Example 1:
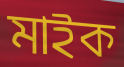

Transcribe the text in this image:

মাইক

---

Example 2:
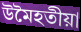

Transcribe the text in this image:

উমৈহতীয়া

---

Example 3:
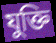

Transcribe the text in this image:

যুক্তি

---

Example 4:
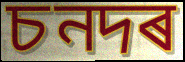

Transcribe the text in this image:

চনদৰ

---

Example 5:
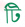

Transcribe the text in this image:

টি